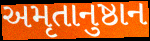
અમૃતાનુષ્ઠાન